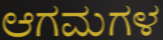
ಆಗಮಗಳ